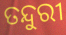
ତନ୍ଦୁରୀ